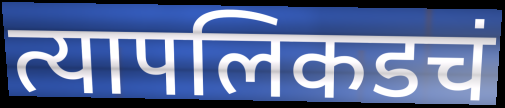
त्यापलिकडचं